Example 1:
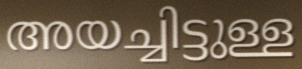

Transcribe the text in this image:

അയച്ചിട്ടുള്ള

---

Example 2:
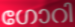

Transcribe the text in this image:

ഗോറി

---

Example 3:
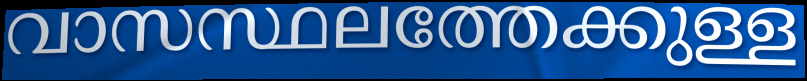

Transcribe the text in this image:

വാസസ്ഥലത്തേക്കുള്ള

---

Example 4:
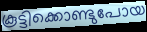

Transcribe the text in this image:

കൂട്ടിക്കൊണ്ടുപോയ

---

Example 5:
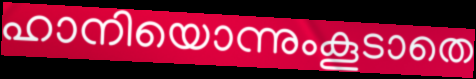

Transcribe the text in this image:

ഹാനിയൊന്നുംകൂടാതെ